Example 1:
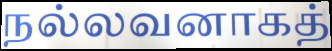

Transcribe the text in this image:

நல்லவனாகத்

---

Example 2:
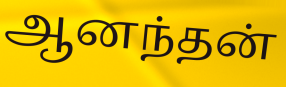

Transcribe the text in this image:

ஆனந்தன்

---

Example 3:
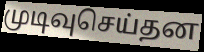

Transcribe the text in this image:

முடிவுசெய்தன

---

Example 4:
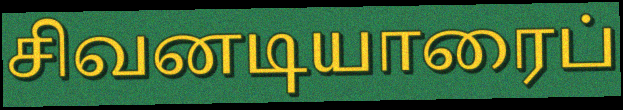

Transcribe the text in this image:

சிவனடியாரைப்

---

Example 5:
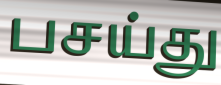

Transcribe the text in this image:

பசய்து